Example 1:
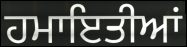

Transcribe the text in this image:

ਹਮਾਇਤੀਆਂ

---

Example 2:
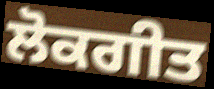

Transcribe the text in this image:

ਲੋਕਗੀਤ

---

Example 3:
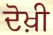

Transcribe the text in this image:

ਦੋਖ਼ੀ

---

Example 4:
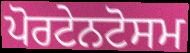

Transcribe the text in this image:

ਪੋਰਟੇਨਟੋਸਮ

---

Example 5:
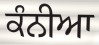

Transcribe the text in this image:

ਕੰਨੀਆ